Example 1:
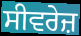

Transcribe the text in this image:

ਸੀਵਰੇਜ਼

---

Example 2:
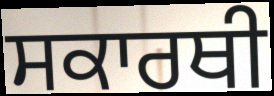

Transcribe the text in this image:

ਸਕਾਰਥੀ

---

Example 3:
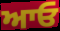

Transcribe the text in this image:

ਆਓ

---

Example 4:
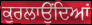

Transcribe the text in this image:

ਕੁਰਲਾਉਂਦਿਆਂ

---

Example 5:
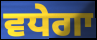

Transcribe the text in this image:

ਵਧੇਗਾ